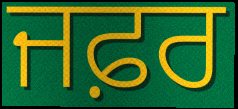
ਜਫ਼ਰ